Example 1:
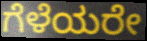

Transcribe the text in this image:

ಗೆಳೆಯರೇ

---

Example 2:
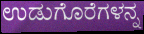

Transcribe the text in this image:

ಉಡುಗೊರೆಗಳನ್ನ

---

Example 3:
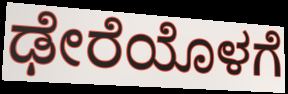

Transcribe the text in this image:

ಢೇರೆಯೊಳಗೆ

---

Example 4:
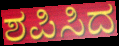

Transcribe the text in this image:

ಶಪಿಸಿದ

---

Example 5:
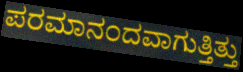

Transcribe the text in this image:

ಪರಮಾನಂದವಾಗುತ್ತಿತ್ತು